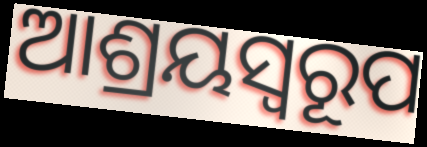
ଆଶ୍ରୟସ୍ୱରୂପ